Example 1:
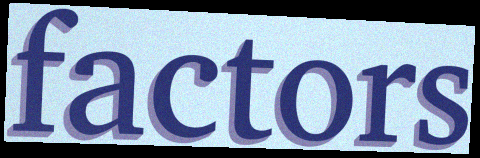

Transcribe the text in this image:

factors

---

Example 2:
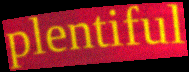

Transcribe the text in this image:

plentiful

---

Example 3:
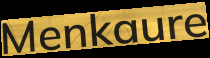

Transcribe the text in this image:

Menkaure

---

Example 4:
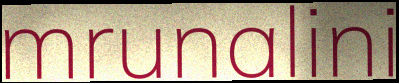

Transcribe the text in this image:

mrunalini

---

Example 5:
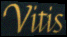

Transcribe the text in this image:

Vitis